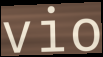
vio